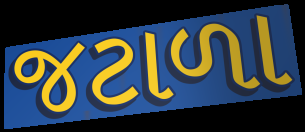
જટાળા